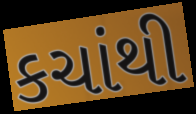
કચાંથી